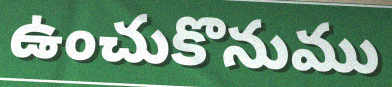
ఉంచుకొనుము